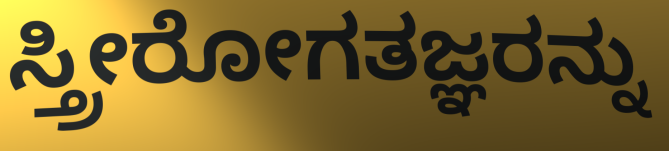
ಸ್ತ್ರೀರೋಗತಜ್ಞರನ್ನು